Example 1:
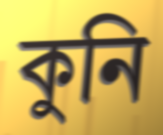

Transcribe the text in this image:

কুনি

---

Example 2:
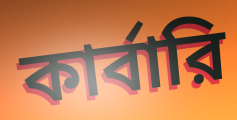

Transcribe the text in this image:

কার্বারি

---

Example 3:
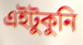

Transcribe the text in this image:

এইটুকুনি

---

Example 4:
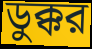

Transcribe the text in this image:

ডুক্কর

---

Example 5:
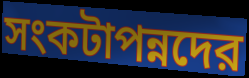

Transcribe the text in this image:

সংকটাপন্নদের